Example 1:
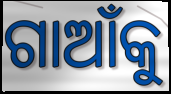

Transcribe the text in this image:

ଗାଆଁକୁ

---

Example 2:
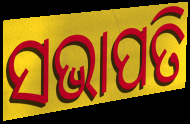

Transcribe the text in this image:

ସଭାପତି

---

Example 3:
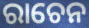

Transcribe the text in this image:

ରାଚେନ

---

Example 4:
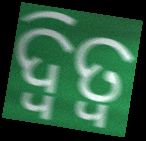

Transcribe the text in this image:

ଦ୍ୱିତ୍ୱ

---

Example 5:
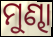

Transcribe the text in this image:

ମୁଣ୍ଢା